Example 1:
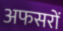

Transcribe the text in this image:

अफसरों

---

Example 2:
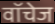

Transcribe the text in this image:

वॉचेज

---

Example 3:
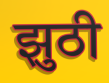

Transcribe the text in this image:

झुठी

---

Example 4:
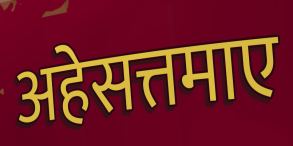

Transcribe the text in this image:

अहेसत्तमाए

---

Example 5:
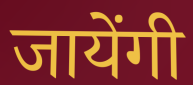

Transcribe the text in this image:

जायेंगी